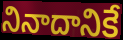
నినాదానికే